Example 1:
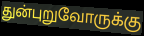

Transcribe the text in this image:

துன்புறுவோருக்கு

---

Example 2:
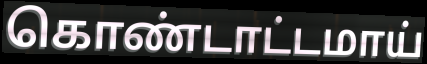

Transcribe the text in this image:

கொண்டாட்டமாய்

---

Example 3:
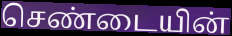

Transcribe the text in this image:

செண்டையின்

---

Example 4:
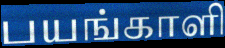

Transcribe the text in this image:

பயங்காளி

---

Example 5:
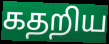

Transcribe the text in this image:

கதறிய